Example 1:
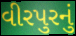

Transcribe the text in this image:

વીરપુરનું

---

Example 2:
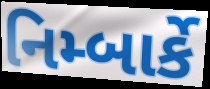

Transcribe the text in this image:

નિમ્બાર્કે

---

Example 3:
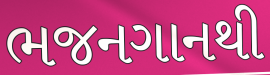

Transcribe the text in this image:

ભજનગાનથી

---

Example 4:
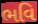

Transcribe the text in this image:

ભવિ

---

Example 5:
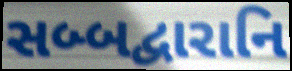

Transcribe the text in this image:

સબ્બદ્વારાનિ